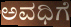
ಅವಧಿಗೆ